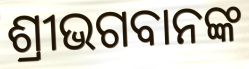
ଶ୍ରୀଭଗବାନଙ୍କ